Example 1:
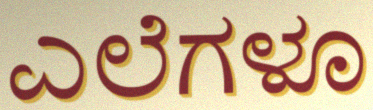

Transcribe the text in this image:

ಎಲೆಗಳೂ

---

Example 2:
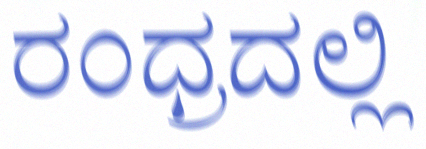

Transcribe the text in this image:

ರಂಧ್ರದಲ್ಲಿ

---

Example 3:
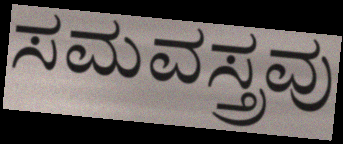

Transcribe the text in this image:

ಸಮವಸ್ತ್ರವು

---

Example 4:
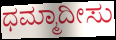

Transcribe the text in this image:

ಧಮ್ಮಾದೀಸು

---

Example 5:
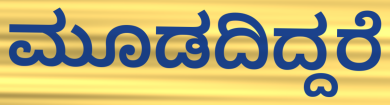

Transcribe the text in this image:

ಮೂಡದಿದ್ದರೆ